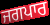
ਜਗਪਾਰ